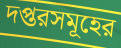
দপ্তরসমূহের